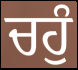
ਚਹੁੰ